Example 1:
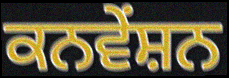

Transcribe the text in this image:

ਕਨਵੇਂਸ਼ਨ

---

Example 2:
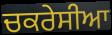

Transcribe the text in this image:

ਚਕਰੇਸੀਆ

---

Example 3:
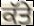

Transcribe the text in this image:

ਕੱਤੇ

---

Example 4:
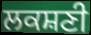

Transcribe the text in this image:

ਲਕਸ਼ਣੀ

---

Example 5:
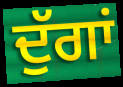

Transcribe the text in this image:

ਦੁੱਗਾਂ